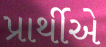
પ્રાર્થીએ